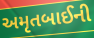
અમૃતબાઈની